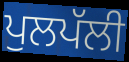
ਪੁਲਪੱਲੀ